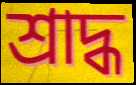
শ্রাদ্ধ